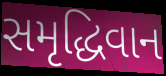
સમૃદ્ધિવાન